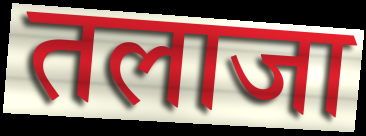
तलाजा